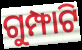
ଗୁମ୍ଫାଟି